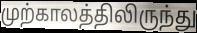
முற்காலத்திலிருந்து